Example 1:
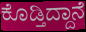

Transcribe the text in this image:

ಕೊಡ್ತಿದ್ದಾನೆ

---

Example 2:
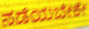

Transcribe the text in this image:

ನಡೆಯಬೇಕೇ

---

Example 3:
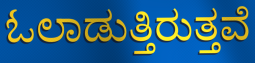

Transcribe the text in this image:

ಓಲಾಡುತ್ತಿರುತ್ತವೆ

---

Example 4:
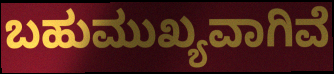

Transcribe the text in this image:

ಬಹುಮುಖ್ಯವಾಗಿವೆ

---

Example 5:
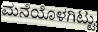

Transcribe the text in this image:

ಮನೆಯೊಳಗಿಟ್ಟು